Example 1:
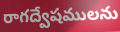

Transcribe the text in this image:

రాగద్వేషములను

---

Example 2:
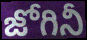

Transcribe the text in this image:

జోగినీ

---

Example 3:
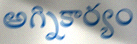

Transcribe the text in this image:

అగ్నికార్యం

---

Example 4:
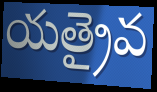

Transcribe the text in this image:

యత్రైవ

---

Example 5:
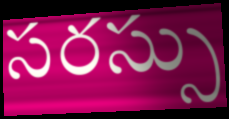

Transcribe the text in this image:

సరస్సు